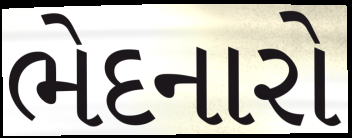
ભેદનારો